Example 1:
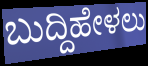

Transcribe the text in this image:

ಬುದ್ದಿಹೇಳಲು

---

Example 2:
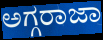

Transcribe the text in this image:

ಅಗ್ಗರಾಜಾ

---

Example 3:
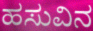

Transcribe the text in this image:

ಹಸುವಿನ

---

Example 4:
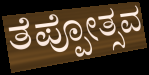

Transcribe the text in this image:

ತೆಪ್ಪೋತ್ಸವ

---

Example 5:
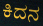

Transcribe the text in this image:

ಕಿದನ